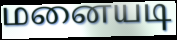
மனையடி